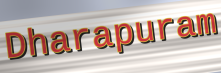
Dharapuram